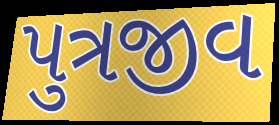
પુત્રજીવ